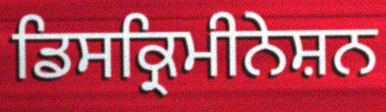
ਡਿਸਕ੍ਰਿਮੀਨੇਸ਼ਨ